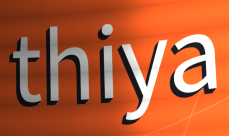
thiya